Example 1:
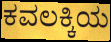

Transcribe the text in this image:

ಕವಲಕ್ಕಿಯ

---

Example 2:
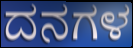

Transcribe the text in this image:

ದನಗಳ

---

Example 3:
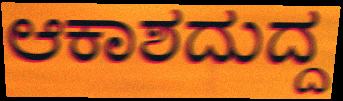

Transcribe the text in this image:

ಆಕಾಶದುದ್ದ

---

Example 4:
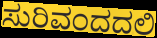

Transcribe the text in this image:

ಸುರಿವಂದದಲಿ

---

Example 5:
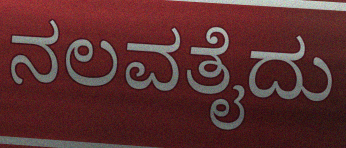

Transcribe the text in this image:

ನಲವತೈದು